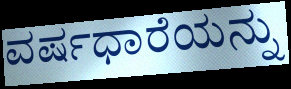
ವರ್ಷಧಾರೆಯನ್ನು